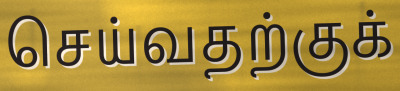
செய்வதற்குக்